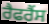
ਰੈਫਰੈਂਸ